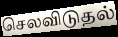
செலவிடுதல்